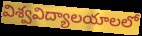
విశ్వవిద్యాలయాలలో